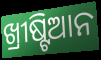
ଖ୍ରୀଷ୍ଟିଆନ